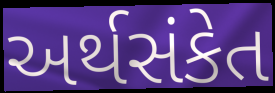
અર્થસંકેત